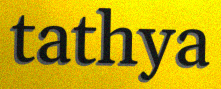
tathya